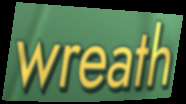
wreath